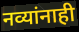
नव्यांनाही